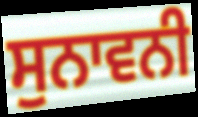
ਸੁਨਾਵਨੀ